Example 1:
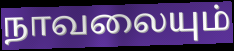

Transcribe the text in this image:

நாவலையும்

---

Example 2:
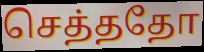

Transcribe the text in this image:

செத்ததோ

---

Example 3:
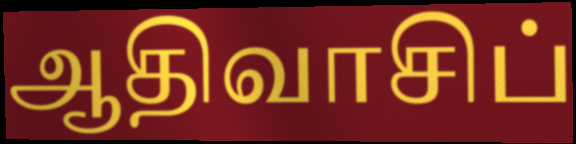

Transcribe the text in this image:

ஆதிவாசிப்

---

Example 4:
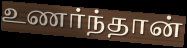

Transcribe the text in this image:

உணர்ந்தான்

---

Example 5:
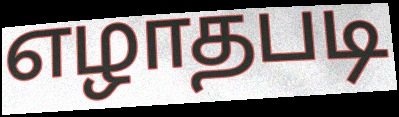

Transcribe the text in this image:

எழாதபடி